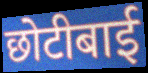
छोटीबाई